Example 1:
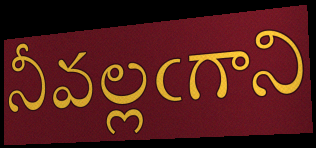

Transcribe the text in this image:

నీవల్లఁగాని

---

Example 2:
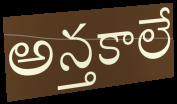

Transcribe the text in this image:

అన్తకాలే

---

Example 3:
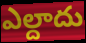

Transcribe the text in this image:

ఎల్దాదు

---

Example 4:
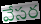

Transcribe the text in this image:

వేసర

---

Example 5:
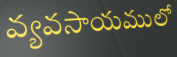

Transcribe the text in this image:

వ్యవసాయములో